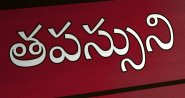
తపస్సుని